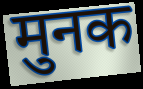
मुनक